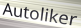
Autoliker